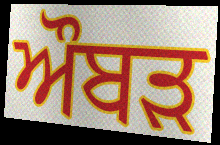
ਔਬੜ